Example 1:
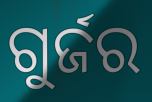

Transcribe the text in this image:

ଗୁର୍ଜର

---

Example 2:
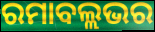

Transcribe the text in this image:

ରମାବଲ୍ଲଭର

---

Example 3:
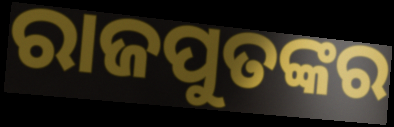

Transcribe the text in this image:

ରାଜପୁତଙ୍କର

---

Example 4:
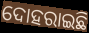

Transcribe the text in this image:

ଦୋହରାଇଛି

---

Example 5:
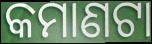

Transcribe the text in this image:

କମାଣଟା